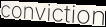
conviction